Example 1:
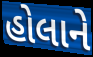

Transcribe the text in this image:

હોલાને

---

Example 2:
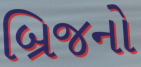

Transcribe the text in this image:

બ્રિજનો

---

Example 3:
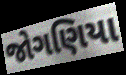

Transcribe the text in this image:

જોગણિયા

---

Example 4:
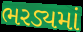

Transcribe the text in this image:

ભરડ્યમાં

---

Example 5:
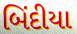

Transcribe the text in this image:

બિંદીયા